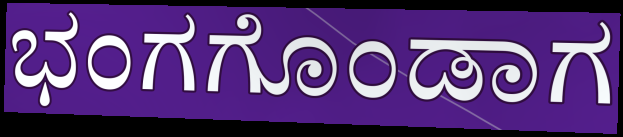
ಭಂಗಗೊಂಡಾಗ